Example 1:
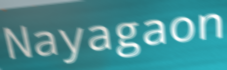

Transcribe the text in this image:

Nayagaon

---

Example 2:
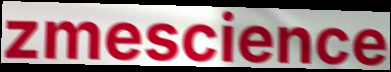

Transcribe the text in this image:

zmescience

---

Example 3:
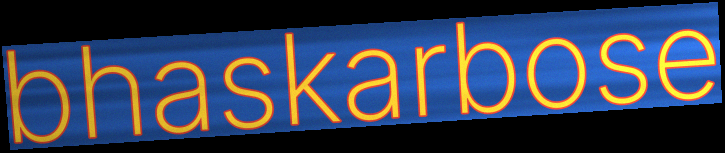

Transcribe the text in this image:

bhaskarbose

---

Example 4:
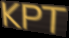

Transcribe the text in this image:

KPT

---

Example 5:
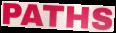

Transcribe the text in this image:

PATHS